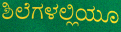
ಶಿಲೆಗಳಲ್ಲಿಯೂ